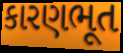
કારણભૂત